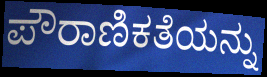
ಪೌರಾಣಿಕತೆಯನ್ನು